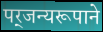
पर्जन्यरूपाने